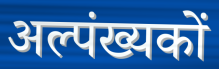
अल्पंख्यकों